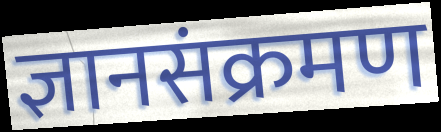
ज्ञानसंक्रमण